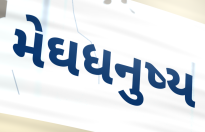
મેઘધનુષ્ય